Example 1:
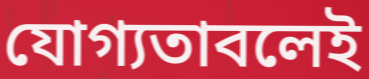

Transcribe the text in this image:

যোগ্যতাবলেই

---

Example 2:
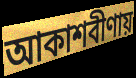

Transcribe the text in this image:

আকাশবীণায়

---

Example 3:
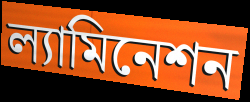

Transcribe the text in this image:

ল্যামিনেশন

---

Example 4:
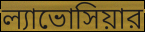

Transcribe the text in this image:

ল্যাভোসিয়ার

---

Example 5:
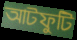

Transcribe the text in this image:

আটফুটি